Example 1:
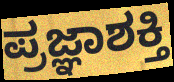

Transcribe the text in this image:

ಪ್ರಜ್ಞಾಶಕ್ತಿ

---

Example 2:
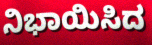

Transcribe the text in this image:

ನಿಭಾಯಿಸಿದ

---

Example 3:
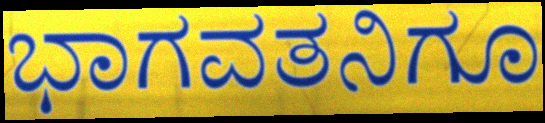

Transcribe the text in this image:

ಭಾಗವತನಿಗೂ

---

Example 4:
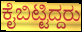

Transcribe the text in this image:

ಕೈಬಿಟ್ಟಿದ್ದರು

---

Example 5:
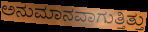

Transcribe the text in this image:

ಅನುಮಾನವಾಗುತ್ತಿತ್ತು